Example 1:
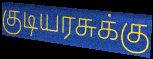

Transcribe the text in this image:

குடியரசுக்கு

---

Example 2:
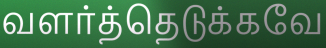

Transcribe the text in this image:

வளர்த்தெடுக்கவே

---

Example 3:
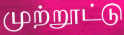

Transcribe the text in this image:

முற்றூட்டு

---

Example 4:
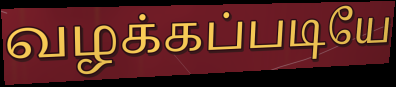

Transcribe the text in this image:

வழக்கப்படியே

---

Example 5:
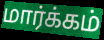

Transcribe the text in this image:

மார்க்கம்